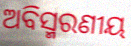
ଅବିସ୍ମରଣୀୟ